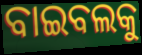
ବାଇବଲକୁ